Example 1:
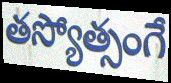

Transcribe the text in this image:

తస్యోత్సంగే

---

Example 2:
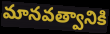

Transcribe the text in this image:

మానవత్వానికి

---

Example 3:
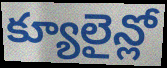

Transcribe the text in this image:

క్యూలైన్లో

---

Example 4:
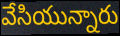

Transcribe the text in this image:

వేసియున్నారు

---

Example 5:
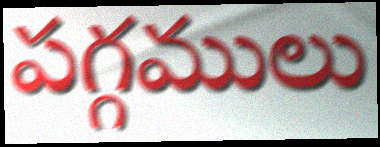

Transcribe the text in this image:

పగ్గములు